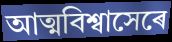
আত্মবিশ্বাসেৰে